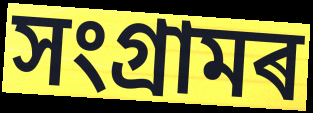
সংগ্ৰামৰ